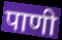
पाणी